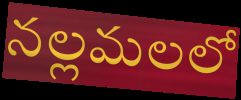
నల్లమలలో